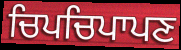
ਚਿਪਚਿਪਾਪਣ